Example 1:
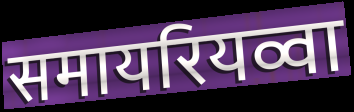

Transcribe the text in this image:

समायरियव्वा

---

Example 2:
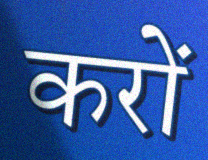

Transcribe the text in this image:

करों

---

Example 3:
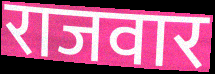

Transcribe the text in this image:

राजवार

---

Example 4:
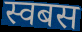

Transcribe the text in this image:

स्वबस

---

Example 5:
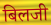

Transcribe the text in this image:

बिलजी